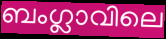
ബംഗ്ലാവിലെ